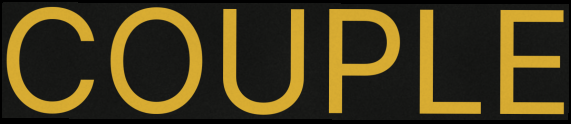
COUPLE